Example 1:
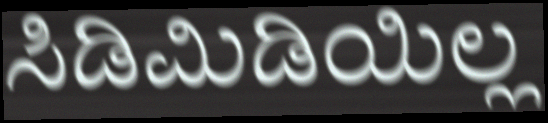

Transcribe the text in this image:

ಸಿಡಿಮಿಡಿಯಿಲ್ಲ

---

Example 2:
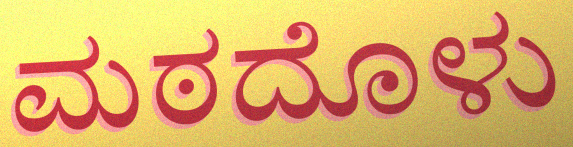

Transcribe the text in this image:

ಮಠದೊಳು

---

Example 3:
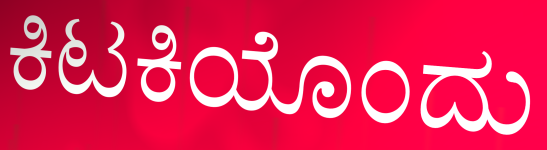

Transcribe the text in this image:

ಕಿಟಕಿಯೊಂದು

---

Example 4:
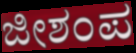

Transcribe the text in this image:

ಜೀಶಂಪ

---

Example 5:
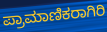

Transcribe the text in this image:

ಪ್ರಾಮಾಣಿಕರಾಗಿರಿ